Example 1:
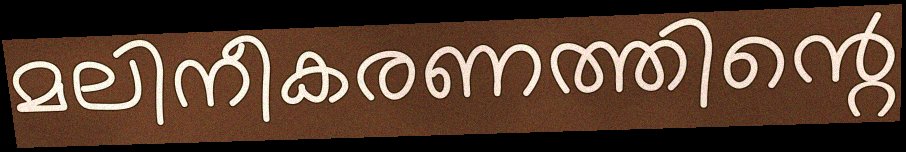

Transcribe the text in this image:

മലിനീകരണത്തിന്റെ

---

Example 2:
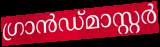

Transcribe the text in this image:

ഗ്രാൻഡ്മാസ്റ്റർ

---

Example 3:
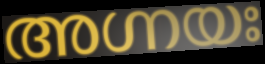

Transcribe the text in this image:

അഗ്നയഃ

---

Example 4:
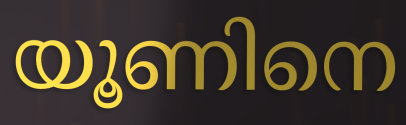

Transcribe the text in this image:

യൂണിനെ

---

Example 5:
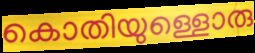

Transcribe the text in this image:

കൊതിയുള്ളൊരു